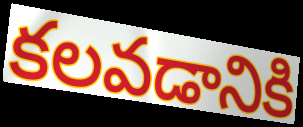
కలవడానికి